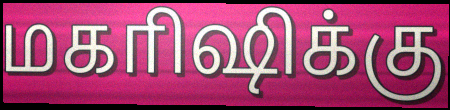
மகரிஷிக்கு